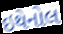
ઇથેનોલ